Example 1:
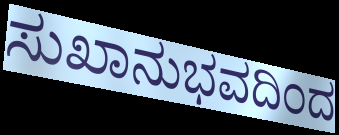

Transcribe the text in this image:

ಸುಖಾನುಭವದಿಂದ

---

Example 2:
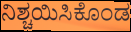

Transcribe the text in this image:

ನಿಶ್ಚಯಿಸಿಕೊಂಡ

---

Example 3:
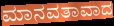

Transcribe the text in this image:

ಮಾನವತಾವಾದ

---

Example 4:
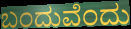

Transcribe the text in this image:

ಬಂದುವೆಂದು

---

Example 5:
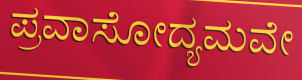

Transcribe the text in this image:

ಪ್ರವಾಸೋದ್ಯಮವೇ